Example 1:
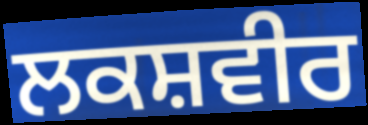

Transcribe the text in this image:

ਲਕਸ਼ਵੀਰ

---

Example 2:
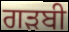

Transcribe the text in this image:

ਗੜਬੀ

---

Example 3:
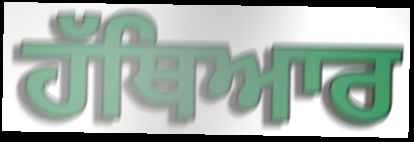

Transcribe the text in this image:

ਹੱਥਿਆਰ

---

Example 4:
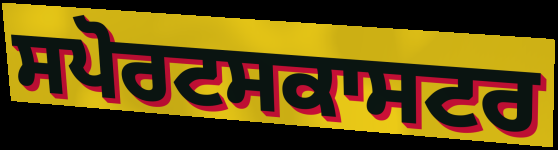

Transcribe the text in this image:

ਸਪੋਰਟਸਕਾਸਟਰ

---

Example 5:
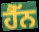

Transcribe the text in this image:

ਹੈੱਨ